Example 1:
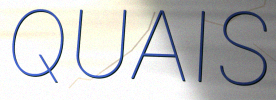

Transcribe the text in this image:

QUAIS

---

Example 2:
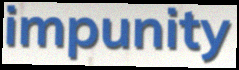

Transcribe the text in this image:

impunity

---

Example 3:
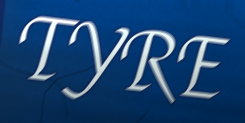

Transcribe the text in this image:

TYRE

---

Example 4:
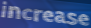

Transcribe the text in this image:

increase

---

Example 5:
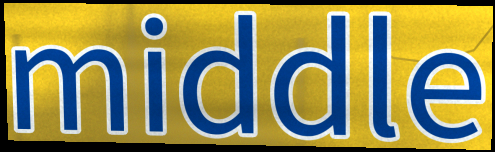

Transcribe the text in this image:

middle